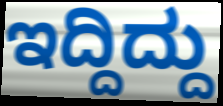
ಇದ್ದಿದ್ದು